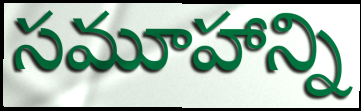
సమూహాన్ని